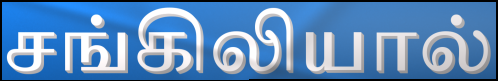
சங்கிலியால்